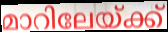
മാറിലേയ്ക്ക്